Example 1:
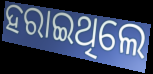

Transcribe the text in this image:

ହରାଇଥିଲେ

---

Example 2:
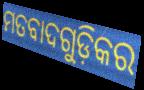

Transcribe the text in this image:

ମତବାଦଗୁଡ଼ିକର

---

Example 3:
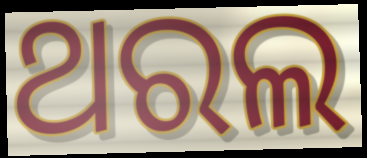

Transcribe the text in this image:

ଥରଲ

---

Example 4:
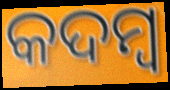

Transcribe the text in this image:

କଦମ୍ୱ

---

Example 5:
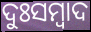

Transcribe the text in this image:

ଦୁଃସମ୍ୱାଦ